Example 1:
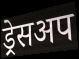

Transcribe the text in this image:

ड्रेसअप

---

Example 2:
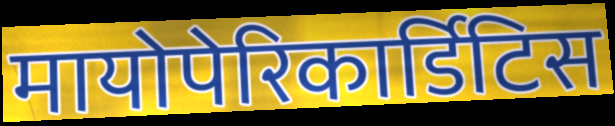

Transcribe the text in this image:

मायोपेरिकार्डिटिस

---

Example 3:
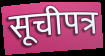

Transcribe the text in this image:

सूचीपत्र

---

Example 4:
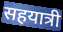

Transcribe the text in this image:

सहयात्री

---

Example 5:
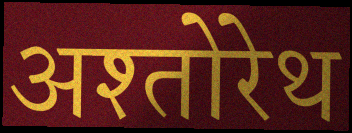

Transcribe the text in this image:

अश्तोरेथ